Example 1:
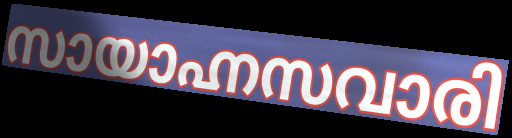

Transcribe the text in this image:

സായാഹ്നസവാരി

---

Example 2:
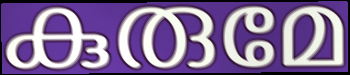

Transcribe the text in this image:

കുരുമേ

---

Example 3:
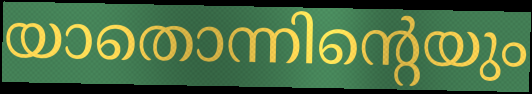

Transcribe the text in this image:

യാതൊന്നിന്റെയും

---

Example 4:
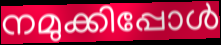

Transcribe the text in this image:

നമുക്കിപ്പോൾ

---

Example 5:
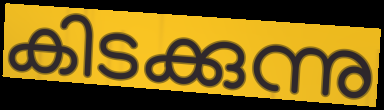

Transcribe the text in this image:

കിടക്കുന്നു